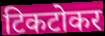
टिकटोकर